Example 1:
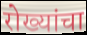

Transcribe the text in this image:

रोख्यांचा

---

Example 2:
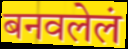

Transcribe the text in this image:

बनवलेलं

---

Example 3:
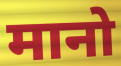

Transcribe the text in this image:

मानो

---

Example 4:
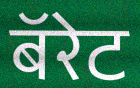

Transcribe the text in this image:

बॅरेट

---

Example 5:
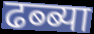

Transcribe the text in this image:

ढब्ब्या